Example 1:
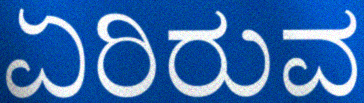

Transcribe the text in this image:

ಏರಿರುವ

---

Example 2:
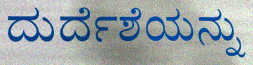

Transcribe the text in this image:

ದುರ್ದೆಶೆಯನ್ನು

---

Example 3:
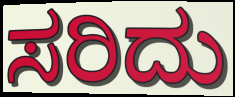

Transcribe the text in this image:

ಸರಿದು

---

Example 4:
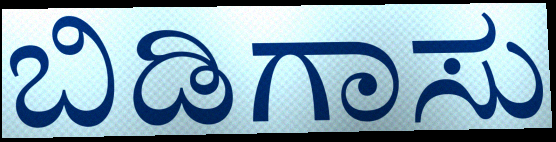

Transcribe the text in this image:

ಬಿಡಿಗಾಸು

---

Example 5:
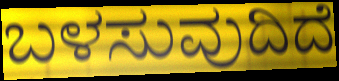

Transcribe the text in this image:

ಬಳಸುವುದಿದೆ